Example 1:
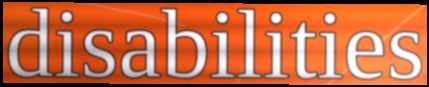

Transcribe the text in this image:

disabilities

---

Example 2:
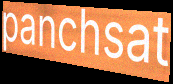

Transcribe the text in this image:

panchsat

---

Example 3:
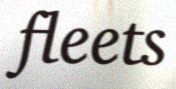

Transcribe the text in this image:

fleets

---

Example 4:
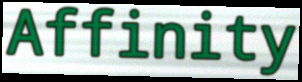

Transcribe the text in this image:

Affinity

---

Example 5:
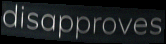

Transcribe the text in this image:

disapproves